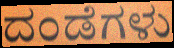
ದಂಡೆಗಳು